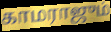
காமராஜும்